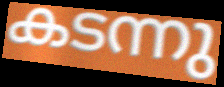
കടന്നു